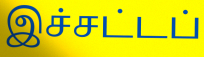
இச்சட்டப்